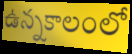
ఉన్నకాలంలో